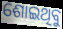
ଶୋଇଥିବୁ